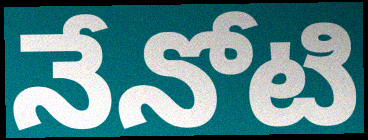
నేనోటి